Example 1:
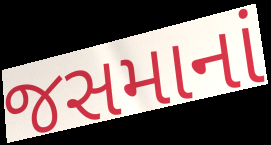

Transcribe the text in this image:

જસમાનાં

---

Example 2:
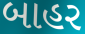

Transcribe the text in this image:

બાહર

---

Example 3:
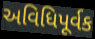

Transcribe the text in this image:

અવિધિપૂર્વક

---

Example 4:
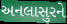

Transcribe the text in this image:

અનલાસુરને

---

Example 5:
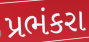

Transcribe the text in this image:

પ્રભંકરા